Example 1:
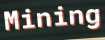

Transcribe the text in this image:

Mining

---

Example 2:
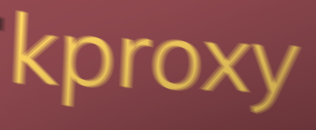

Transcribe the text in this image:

kproxy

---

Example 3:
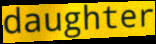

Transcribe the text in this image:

daughter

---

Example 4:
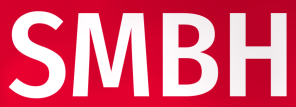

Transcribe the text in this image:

SMBH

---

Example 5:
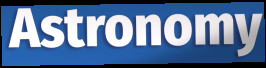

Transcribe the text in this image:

Astronomy